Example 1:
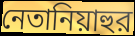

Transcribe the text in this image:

নেতানিয়াহুর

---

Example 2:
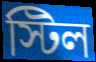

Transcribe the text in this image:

স্টিল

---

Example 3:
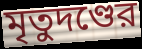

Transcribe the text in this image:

মৃতুদণ্ডের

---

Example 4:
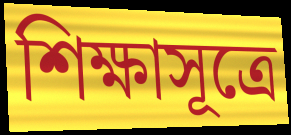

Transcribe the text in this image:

শিক্ষাসূত্রে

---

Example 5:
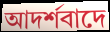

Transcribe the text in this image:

আদর্শবাদে